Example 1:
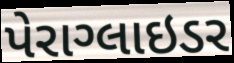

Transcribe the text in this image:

પેરાગ્લાઇડર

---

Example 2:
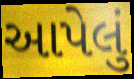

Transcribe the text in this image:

આપેલું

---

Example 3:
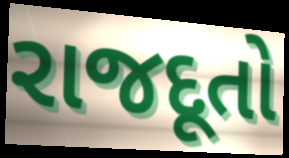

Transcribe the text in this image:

રાજદૂતો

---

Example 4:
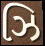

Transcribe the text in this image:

ઝિ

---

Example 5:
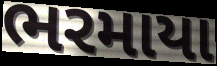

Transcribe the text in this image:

ભરમાયા